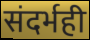
संदर्भही